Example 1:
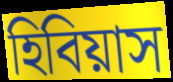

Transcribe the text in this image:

হিবিয়াস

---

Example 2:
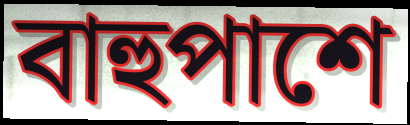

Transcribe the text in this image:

বাহুপাশে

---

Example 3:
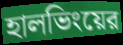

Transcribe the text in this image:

হালভিংয়ের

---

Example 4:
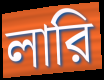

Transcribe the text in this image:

লারি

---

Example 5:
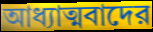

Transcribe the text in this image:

আধ্যাত্মবাদের